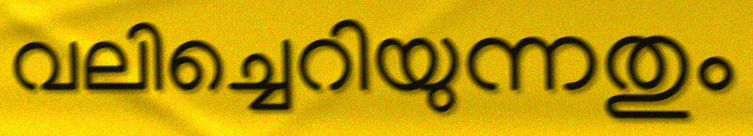
വലിച്ചെറിയുന്നതും